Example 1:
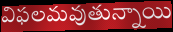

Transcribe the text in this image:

విఫలమవుతున్నాయి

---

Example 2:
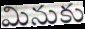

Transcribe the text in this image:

మినుకు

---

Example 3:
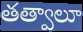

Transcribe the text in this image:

తత్వాలూ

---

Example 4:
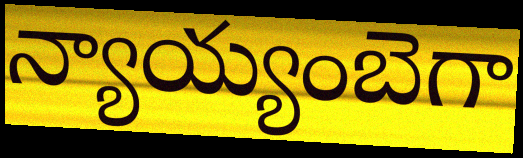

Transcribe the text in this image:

న్యాయ్యంబెగా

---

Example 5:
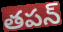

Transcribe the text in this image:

తపన్